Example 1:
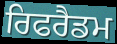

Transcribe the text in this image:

ਰਿਫਰੈਡਮ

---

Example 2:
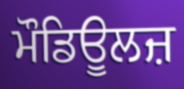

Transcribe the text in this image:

ਮੌਡਿਊਲਜ਼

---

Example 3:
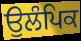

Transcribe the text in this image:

ਉਲੰਪਿਕ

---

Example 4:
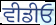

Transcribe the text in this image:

ਵੀਡੀਓ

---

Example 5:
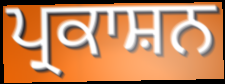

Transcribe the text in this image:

ਪ੍ਰਕਾਸ਼ਨ